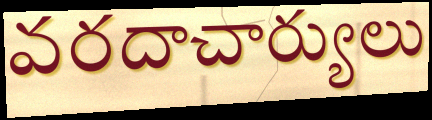
వరదాచార్యులు